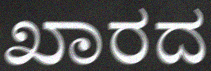
ಖಾರದ